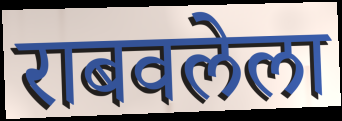
राबवलेला